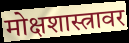
मोक्षशास्त्रावर